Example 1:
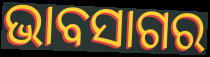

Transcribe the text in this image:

ଭାବସାଗର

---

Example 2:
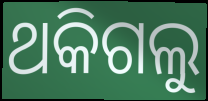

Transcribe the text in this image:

ଥକିଗଲୁ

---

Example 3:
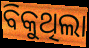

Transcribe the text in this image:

ବିକୁଥିଲା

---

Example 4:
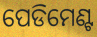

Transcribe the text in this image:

ପେଡିମେଣ୍ଟ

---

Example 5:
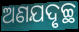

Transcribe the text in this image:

ଅଣଯଦୃଚ୍ଛ